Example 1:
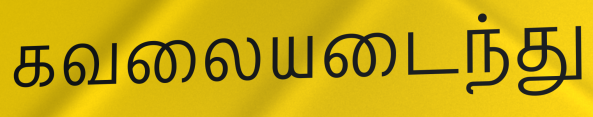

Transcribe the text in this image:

கவலையடைந்து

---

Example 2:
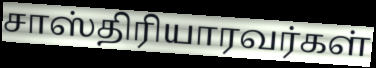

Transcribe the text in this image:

சாஸ்திரியாரவர்கள்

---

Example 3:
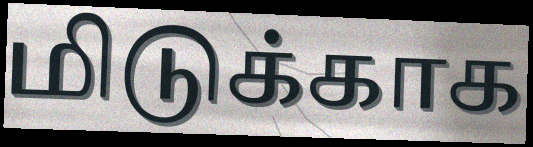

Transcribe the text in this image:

மிடுக்காக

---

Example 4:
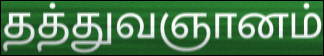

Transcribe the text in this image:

தத்துவஞானம்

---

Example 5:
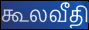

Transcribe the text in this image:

கூலவீதி